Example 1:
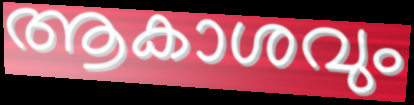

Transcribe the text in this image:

ആകാശവും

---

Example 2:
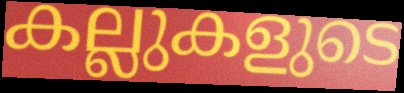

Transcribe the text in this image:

കല്ലുകളുടെ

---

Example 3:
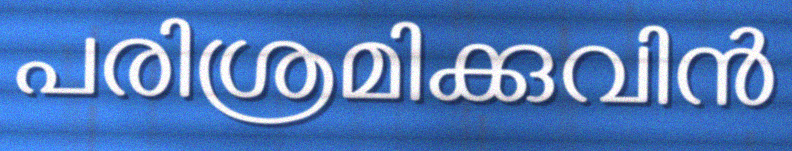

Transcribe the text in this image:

പരിശ്രമിക്കുവിൻ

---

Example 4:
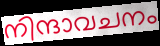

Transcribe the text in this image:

നിന്ദാവചനം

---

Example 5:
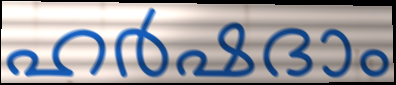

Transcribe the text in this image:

ഹർഷദാം